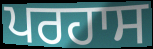
ਪਰਹਾਸ